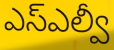
ఎస్ఎల్వీ